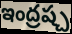
ఇంద్రష్చ